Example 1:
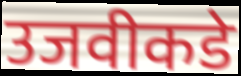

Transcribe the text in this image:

उजवीकडे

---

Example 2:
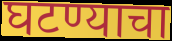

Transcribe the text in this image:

घटण्याचा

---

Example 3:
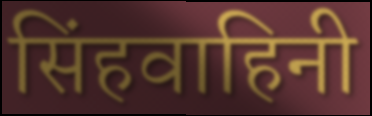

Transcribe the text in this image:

सिंहवाहिनी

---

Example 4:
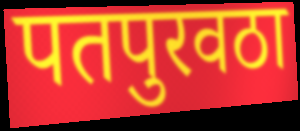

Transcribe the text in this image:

पतपुरवठा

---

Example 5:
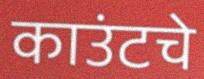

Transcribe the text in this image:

काउंटचे